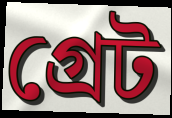
গ্ৰেট